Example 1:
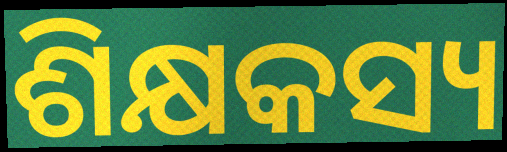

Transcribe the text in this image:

ଶିକ୍ଷକସ୍ୟ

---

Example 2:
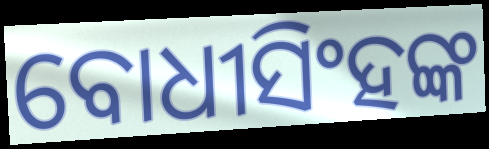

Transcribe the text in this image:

ବୋଧୀସିଂହଙ୍କ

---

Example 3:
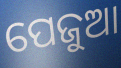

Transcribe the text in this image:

ପେଜୁଆ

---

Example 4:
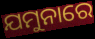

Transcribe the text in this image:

ଯମୁନାରେ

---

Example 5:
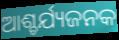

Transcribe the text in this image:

ଆଶ୍ଚର୍ଯ୍ୟଜନକ